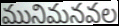
మునిమనవల